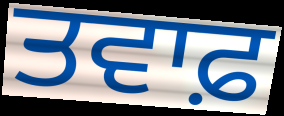
ਤਵਾਫ਼